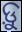
ଡ଼ୁ